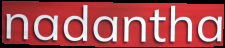
nadantha